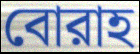
বোরাহ